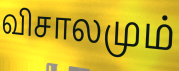
விசாலமும்